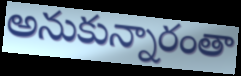
అనుకున్నారంతా